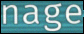
nage